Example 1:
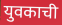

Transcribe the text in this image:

युवकाची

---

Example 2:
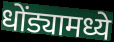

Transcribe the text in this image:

धोंड्यामध्ये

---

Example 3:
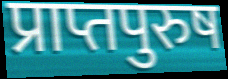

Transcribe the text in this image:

प्राप्तपुरुष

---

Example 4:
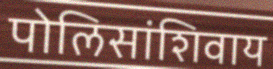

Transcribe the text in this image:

पोलिसांशिवाय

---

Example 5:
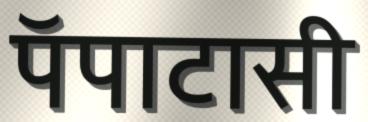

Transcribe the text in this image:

पॅपाटासी